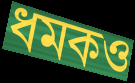
ধমকও